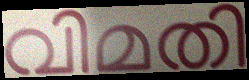
വിമതി